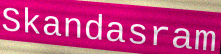
Skandasram